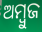
ଅମ୍ୱୁଜ